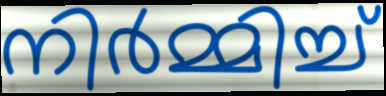
നിർമ്മിച്ച്